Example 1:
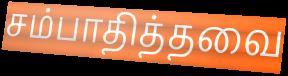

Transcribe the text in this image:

சம்பாதித்தவை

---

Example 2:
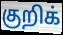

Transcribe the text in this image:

குறிக்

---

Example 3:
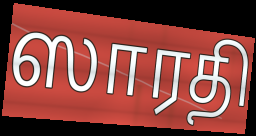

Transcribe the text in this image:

ஸாரதி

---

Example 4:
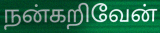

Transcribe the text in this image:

நன்கறிவேன்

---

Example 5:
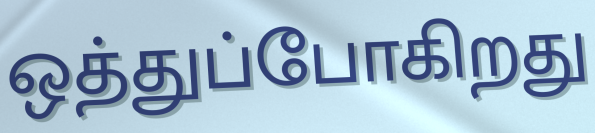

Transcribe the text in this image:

ஒத்துப்போகிறது